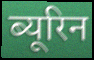
ब्यूरिन